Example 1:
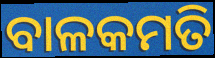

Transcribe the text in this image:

ବାଳକମତି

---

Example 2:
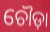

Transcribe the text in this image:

ଚୌଡ଼ା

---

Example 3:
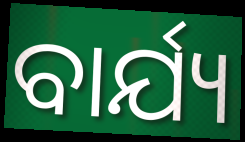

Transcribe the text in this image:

ବାର୍ଯ୍ୟ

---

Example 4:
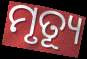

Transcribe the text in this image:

ମୃତ୍ୟୂ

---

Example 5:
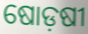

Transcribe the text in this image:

ଷୋଡ଼ଷୀ